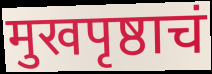
मुखपृष्ठाचं